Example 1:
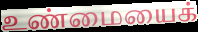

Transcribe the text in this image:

உண்மையைக்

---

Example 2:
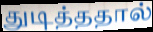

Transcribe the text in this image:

துடித்ததால்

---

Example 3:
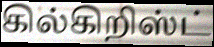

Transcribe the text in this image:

கில்கிறிஸ்ட்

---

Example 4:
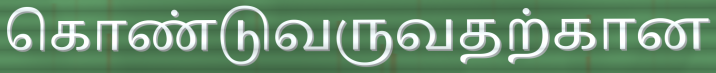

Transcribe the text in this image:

கொண்டுவருவதற்கான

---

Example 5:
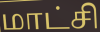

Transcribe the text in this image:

மாட்சி